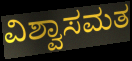
ವಿಶ್ವಾಸಮತ